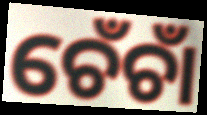
ଚେଁଚାଁ